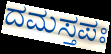
ದಮಸ್ತಪಃ